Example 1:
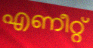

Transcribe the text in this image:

എണീറ്റ്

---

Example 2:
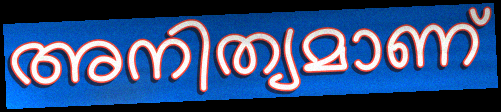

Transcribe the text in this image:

അനിത്യമാണ്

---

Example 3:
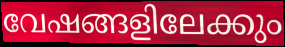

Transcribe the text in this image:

വേഷങ്ങളിലേക്കും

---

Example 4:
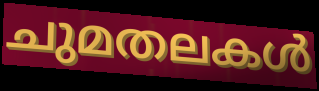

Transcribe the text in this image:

ചുമതലകൾ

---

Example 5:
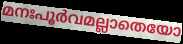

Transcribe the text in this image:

മനഃപൂർവമല്ലാതെയോ